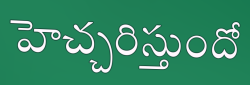
హెచ్చరిస్తుందో